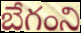
బేగంని